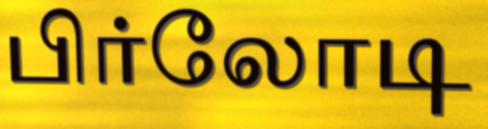
பிர்லோடி